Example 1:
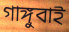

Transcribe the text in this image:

গাঙ্গুবাই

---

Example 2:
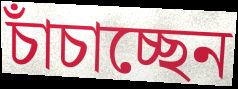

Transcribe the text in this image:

চাঁচাচ্ছেন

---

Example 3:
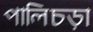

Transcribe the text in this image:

পালিচড়া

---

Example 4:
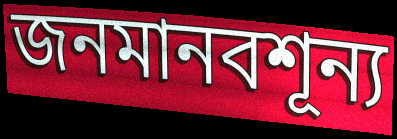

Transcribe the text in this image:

জনমানবশূন্য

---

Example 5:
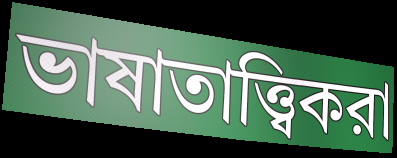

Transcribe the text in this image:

ভাষাতাত্ত্বিকরা